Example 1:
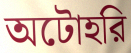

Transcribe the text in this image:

অটোহরি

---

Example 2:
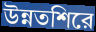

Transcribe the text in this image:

উন্নতশিরে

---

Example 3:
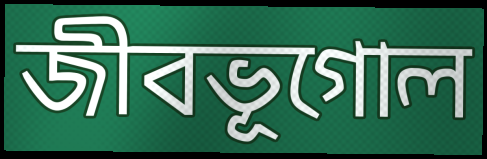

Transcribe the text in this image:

জীবভূগোল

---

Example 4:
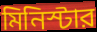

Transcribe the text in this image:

মিনিস্টার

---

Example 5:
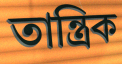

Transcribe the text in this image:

তান্ত্রিক